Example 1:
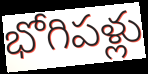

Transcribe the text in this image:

భోగిపళ్లు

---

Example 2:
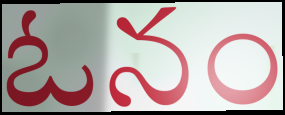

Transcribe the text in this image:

ఓనం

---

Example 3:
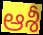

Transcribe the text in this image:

ఆశీ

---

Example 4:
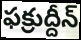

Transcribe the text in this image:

ఫక్రుద్దీన్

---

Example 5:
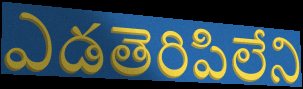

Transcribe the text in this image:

ఎడతెరిపిలేని